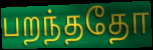
பறந்ததோ